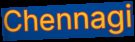
Chennagi